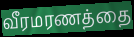
வீரமரணத்தை